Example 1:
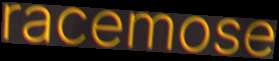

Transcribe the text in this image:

racemose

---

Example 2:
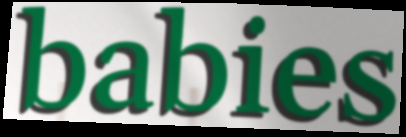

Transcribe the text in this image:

babies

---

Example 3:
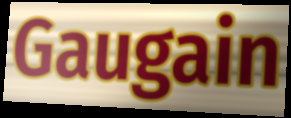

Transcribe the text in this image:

Gaugain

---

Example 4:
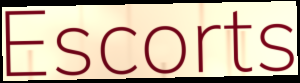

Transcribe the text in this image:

Escorts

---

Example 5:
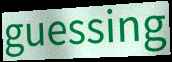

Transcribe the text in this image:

guessing